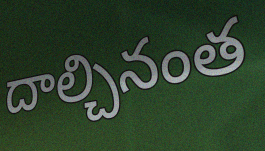
దాల్చినంత